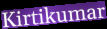
Kirtikumar